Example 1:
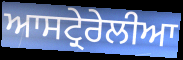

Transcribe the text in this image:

ਆਸਟ੍ਰੇਰੇਲੀਆ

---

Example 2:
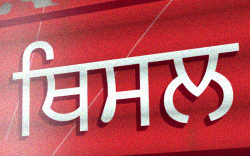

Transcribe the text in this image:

ਥਿਸਲ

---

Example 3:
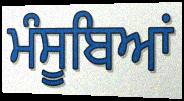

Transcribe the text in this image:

ਮੰਸੂਬਿਆਂ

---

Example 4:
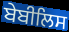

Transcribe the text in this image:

ਬੇਬੀਲਿਸ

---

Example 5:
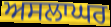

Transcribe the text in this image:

ਅਸਲਾਘਰ